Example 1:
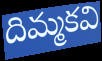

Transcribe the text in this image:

దిమ్మకవి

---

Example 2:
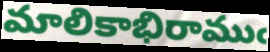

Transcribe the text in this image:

మాలికాభిరాముఁ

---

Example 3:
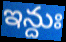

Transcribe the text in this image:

ఇన్దుః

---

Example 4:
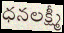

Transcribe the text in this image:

ధనలక్ష్మీ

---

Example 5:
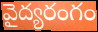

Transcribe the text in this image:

వైద్యరంగం